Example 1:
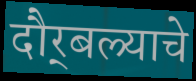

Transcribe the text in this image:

दौर्बल्याचे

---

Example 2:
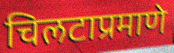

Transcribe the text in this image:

चिलटाप्रमाणे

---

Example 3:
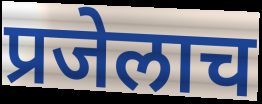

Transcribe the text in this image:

प्रजेलाच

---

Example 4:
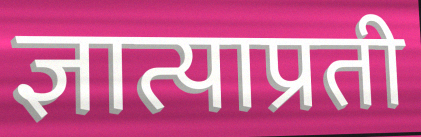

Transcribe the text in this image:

ज्ञात्याप्रती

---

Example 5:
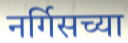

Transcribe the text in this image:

नर्गिसच्या